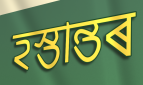
হস্তান্তৰ